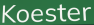
Koester